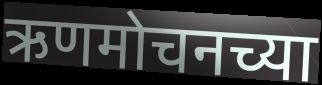
ऋणमोचनच्या